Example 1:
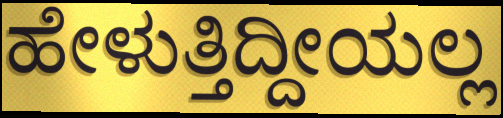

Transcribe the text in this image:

ಹೇಳುತ್ತಿದ್ದೀಯಲ್ಲ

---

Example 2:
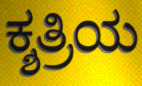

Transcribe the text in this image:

ಕ್ಶತ್ರಿಯ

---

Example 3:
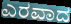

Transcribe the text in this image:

ಎರವಾದ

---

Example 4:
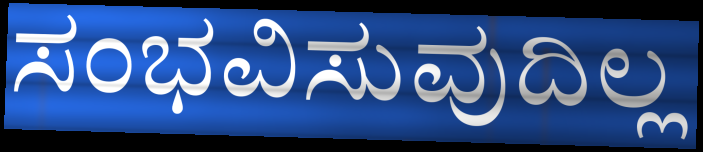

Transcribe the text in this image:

ಸಂಭವಿಸುವುದಿಲ್ಲ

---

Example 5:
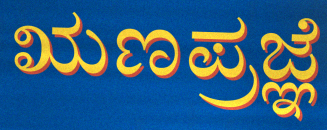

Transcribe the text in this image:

ಋಣಪ್ರಜ್ಞೆ